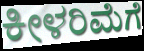
ಕೀಳರಿಮೆಗೆ